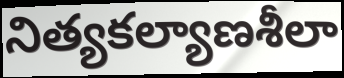
నిత్యకల్యాణశీలా